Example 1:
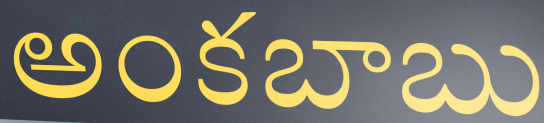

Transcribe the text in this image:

అంకబాబు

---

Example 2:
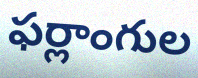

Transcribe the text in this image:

ఫర్లాంగుల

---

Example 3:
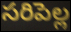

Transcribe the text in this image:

సరిపెల్ల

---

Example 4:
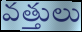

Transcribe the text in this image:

వత్తులు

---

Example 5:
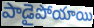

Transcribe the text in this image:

పాడైపోయాయి